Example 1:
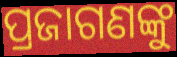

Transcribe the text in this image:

ପ୍ରଜାଗଣଙ୍କୁ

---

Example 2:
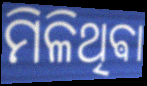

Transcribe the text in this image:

ମିଳିଥିଵା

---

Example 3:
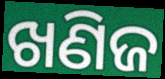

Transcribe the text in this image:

ଖଣିଜ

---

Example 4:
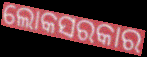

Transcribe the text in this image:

ଲୋକସରକାର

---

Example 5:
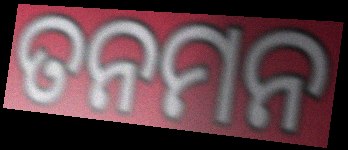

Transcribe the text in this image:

ତନମନ